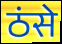
ठंसे